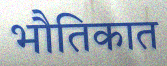
भौतिकात